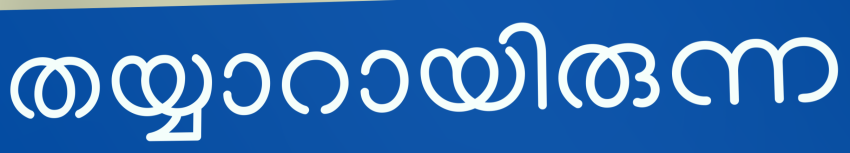
തയ്യാറായിരുന്ന